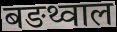
बङथ्वाल